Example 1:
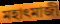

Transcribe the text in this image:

মহাৎমাজী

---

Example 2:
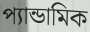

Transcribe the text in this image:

প্যান্ডামিক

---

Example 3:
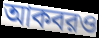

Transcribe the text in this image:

আকবরও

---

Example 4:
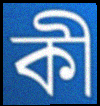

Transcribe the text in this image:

কী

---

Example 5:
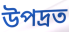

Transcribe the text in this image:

উপদ্রত